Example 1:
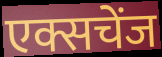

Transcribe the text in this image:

एक्सचेंज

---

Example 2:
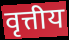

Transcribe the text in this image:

वृत्तीय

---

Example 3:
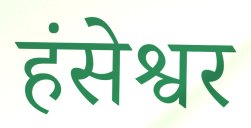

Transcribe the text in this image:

हंसेश्वर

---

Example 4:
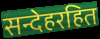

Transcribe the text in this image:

सन्देहरहित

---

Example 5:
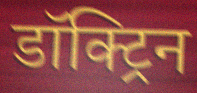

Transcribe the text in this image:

डॉक्ट्रिन